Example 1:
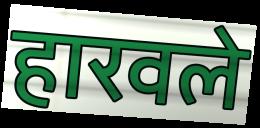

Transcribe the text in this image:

हारवले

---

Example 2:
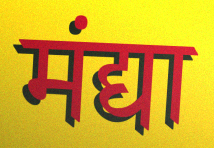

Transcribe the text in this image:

मंद्या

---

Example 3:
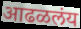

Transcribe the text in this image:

आढळलंय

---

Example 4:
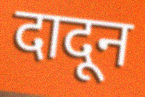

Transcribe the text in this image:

दादून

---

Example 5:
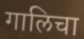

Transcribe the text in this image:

गालिचा